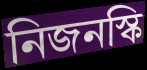
নিজনস্কি